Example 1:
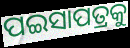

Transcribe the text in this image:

ପଇସାପତ୍ରକୁ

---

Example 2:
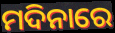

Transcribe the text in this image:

ମଦିନାରେ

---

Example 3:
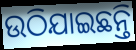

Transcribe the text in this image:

ଉଠିଯାଇଛନ୍ତି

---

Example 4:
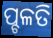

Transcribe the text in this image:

ପ୍ଚଳତି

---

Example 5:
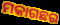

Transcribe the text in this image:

ମକାଗଛର